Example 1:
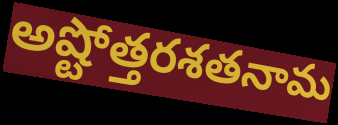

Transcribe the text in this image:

అష్టోత్తరశతనామ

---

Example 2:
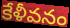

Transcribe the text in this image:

కేళీవనం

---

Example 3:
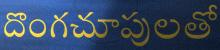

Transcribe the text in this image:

దొంగచూపులతో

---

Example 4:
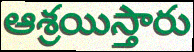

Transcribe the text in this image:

ఆశ్రయిస్తారు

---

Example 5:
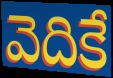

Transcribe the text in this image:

వెదికే